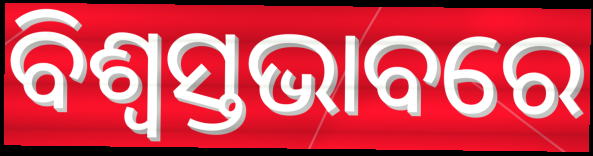
ବିଶ୍ୱସ୍ତଭାବରେ